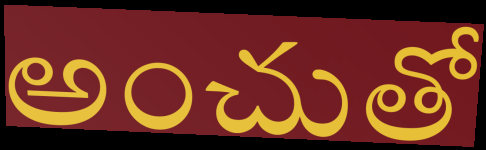
అంచుతో